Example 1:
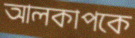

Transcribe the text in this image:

আলকাপকে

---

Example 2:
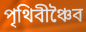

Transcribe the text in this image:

পৃথিবীঞ্চৈব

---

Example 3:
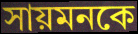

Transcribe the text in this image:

সায়মনকে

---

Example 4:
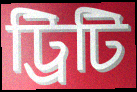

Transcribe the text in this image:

ট্রিটি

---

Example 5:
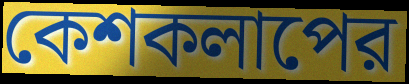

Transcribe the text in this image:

কেশকলাপের